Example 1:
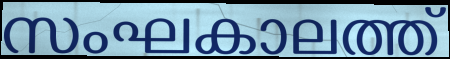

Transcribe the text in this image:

സംഘകാലത്ത്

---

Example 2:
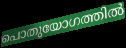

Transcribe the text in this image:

പൊതുയോഗത്തിൽ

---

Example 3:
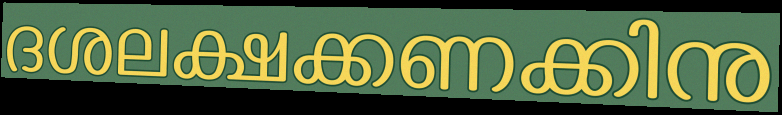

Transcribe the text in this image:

ദശലക്ഷക്കണക്കിനു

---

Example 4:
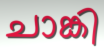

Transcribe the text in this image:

ചാങ്കി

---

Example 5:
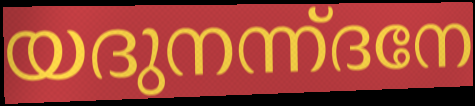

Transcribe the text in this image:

യദുനന്ന്ദനേ